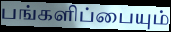
பங்களிப்பையும்